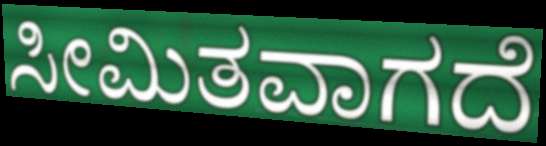
ಸೀಮಿತವಾಗದೆ